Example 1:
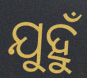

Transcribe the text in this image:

ଯୁହୁଁ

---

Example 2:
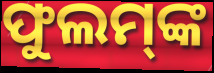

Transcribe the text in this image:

ଫୁଲମ୍‌ଙ୍କ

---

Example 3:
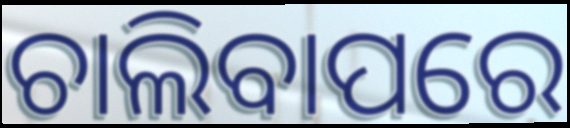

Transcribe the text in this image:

ଚାଲିବାପରେ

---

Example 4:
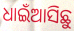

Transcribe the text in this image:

ଧାଇଁଆସିଛୁ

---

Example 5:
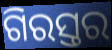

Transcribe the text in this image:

ଗିରସ୍ତର